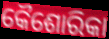
କୈଶୋରିକା